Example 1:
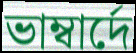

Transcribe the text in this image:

ভাম্বাৰ্দে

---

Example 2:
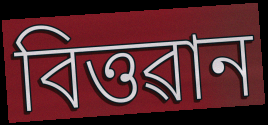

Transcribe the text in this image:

বিত্তৱান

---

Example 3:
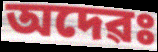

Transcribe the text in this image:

অদেৱঃ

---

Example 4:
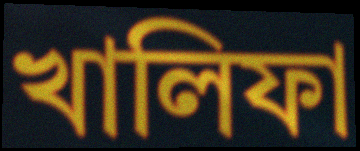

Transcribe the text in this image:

খালিফা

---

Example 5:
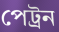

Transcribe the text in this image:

পেট্ৰন